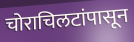
चोराचिलटांपासून